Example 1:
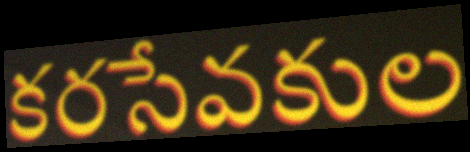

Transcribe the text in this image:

కరసేవకుల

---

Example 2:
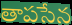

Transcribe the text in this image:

తాపసేన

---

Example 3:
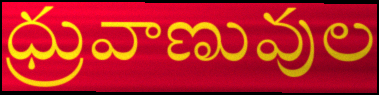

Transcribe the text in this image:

ధ్రువాణువుల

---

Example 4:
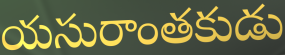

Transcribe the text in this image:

యసురాంతకుడు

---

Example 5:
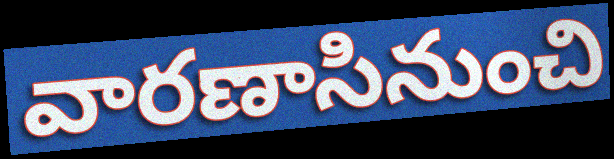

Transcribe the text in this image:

వారణాసినుంచి